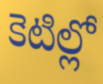
కెటిల్లో